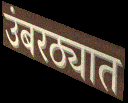
उंबरठ्यात